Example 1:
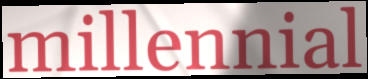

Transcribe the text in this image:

millennial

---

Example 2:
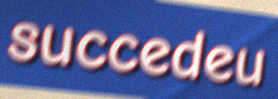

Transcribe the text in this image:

succedeu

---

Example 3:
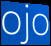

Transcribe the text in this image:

ojo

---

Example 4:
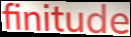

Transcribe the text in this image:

finitude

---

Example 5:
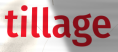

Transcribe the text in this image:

tillage